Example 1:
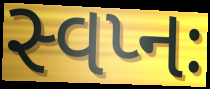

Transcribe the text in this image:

સ્વપ્નઃ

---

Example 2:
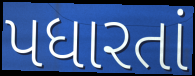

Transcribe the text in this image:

પધારતાં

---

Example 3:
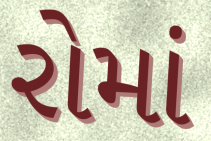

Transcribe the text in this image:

રોમાં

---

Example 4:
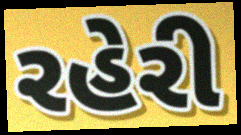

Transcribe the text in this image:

રહેરી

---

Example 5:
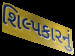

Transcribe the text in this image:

શિલ્પકારનું